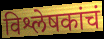
विश्लेषकांचं